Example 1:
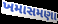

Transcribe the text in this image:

ખમાસમણા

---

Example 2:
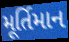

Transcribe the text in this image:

મૂર્તિમાન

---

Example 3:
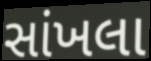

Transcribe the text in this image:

સાંખલા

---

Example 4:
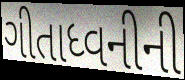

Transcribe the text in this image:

ગીતાધ્વનીની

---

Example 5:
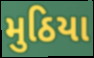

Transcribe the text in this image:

મુઠિયા